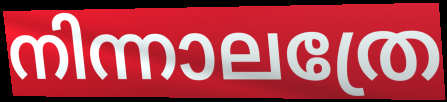
നിന്നാലത്രേ